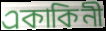
একাকিনী